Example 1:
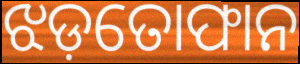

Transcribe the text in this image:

ଝଡ଼ତୋଫାନ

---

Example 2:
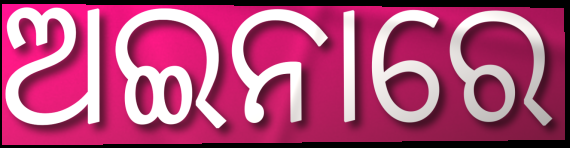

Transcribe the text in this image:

ଅଇନାରେ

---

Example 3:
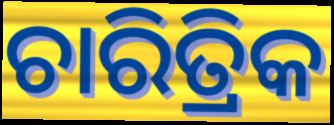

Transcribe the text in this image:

ଚାରିତ୍ରିକ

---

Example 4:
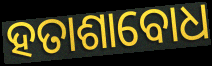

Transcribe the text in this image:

ହତାଶାବୋଧ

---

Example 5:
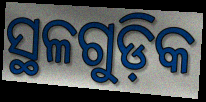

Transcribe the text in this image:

ସ୍ଥଳଗୁଡ଼ିକ